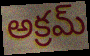
అక్రమ్